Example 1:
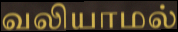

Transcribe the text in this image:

வலியாமல்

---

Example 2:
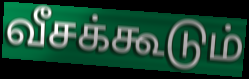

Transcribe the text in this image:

வீசக்கூடும்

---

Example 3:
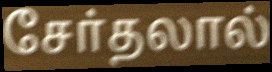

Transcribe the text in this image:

சேர்தலால்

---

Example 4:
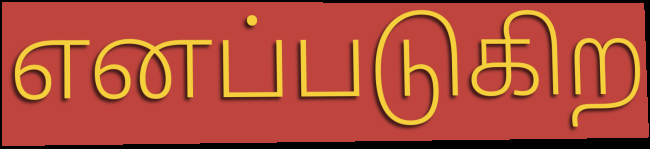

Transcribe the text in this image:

எனப்படுகிற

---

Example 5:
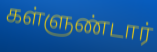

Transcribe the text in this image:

கள்ளுண்டார்